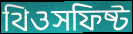
থিওসফিষ্ট